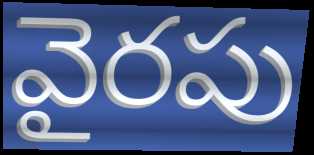
వైరపు